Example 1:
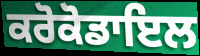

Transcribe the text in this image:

ਕਰੋਕੋਡਾਇਲ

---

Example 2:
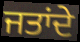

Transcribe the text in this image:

ਜਤਾਂਦੇ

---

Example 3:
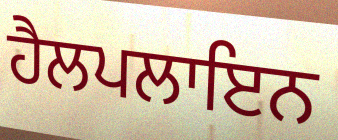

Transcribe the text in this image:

ਹੈਲਪਲਾਇਨ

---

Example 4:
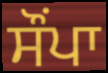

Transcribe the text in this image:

ਸੌਂਪਾ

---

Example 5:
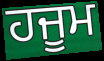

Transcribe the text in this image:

ਹਜੂਮ